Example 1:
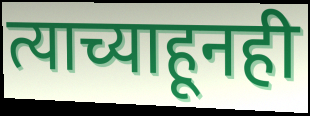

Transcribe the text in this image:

त्याच्याहूनही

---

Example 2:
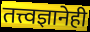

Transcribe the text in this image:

तत्त्वज्ञानेही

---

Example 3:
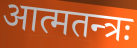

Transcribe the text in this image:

आत्मतन्त्रः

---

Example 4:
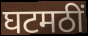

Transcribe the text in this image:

घटमठीं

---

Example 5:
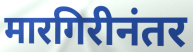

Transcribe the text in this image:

मारगिरीनंतर